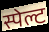
स्पेल्ट